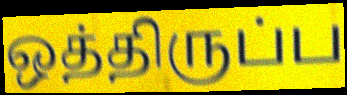
ஒத்திருப்ப